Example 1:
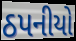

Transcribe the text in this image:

ઠપનીયો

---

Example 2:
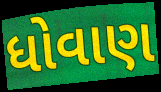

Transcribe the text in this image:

ધોવાણ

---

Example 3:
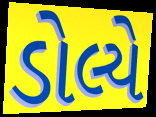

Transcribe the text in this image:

ડોલ્યે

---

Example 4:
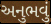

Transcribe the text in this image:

અનુભવું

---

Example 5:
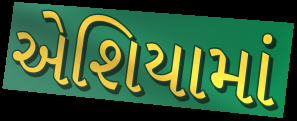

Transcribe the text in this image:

એશિયામાં